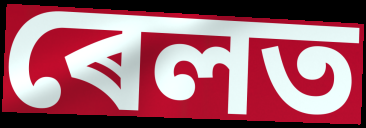
ৰেলত